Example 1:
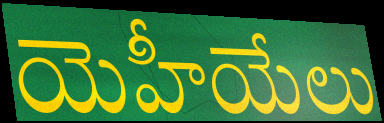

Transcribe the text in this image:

యెహీయేలు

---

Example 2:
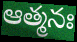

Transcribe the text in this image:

ఆత్మనః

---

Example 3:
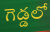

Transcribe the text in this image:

గెడ్డలో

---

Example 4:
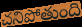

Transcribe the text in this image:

చనిపోతుంది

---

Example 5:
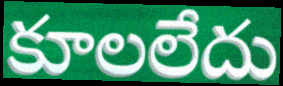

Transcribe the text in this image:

కూలలేదు